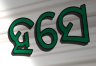
ହସେ